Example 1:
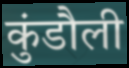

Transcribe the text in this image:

कुंडौली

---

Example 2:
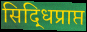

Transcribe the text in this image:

सिद्धिप्राप्त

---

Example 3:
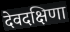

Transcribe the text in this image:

देवदक्षिणा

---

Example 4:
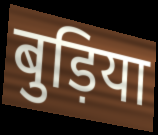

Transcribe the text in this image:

बुड़िया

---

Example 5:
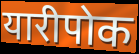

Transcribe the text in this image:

यारीपोक